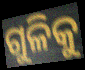
ଗୁଳିକୁ